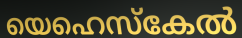
യെഹെസ്കേൽ